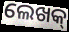
ଲେଖକ୍